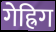
गेह्रिग